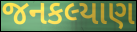
જનકલ્યાણ